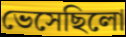
ভেসেছিলো